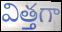
విత్తగా